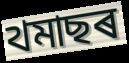
থমাছৰ